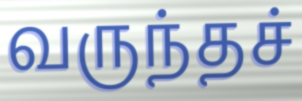
வருந்தச்